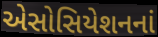
એસોસિયેશનનાં